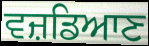
ਵਜ਼ਡਿਆਣ